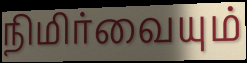
நிமிர்வையும்